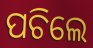
ପଚିଲେ